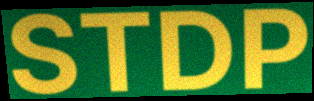
STDP